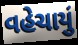
વહેચાયું